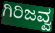
ಗಿರಿಜವ್ವ